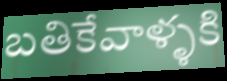
బతికేవాళ్ళకి